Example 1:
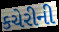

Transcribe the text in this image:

કચેરીની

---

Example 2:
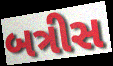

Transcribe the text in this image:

બત્રીસ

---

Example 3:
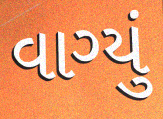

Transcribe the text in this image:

વાગ્યું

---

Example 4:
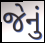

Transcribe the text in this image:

જેનું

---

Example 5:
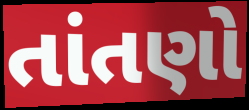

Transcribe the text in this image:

તાંતણો